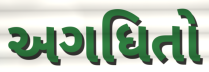
અગધિતો